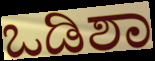
ಒಡಿಶಾ